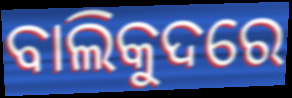
ବାଲିକୁଦରେ